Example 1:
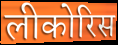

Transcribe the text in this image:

लीकोरिस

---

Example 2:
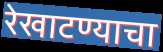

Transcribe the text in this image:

रेखाटण्याचा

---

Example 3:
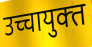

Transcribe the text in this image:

उच्‍चायुक्‍त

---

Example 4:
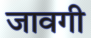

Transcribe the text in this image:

जावगी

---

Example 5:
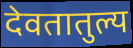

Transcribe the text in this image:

देवतातुल्य